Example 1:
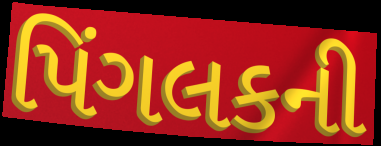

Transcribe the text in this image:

પિંગલકની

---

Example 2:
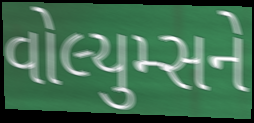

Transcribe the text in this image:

વોલ્યુમ્સને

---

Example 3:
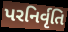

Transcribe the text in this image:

પરનિર્વૃતિ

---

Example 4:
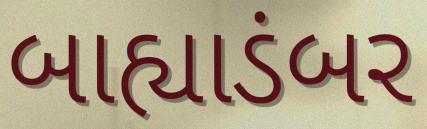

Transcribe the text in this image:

બાહ્યાડંબર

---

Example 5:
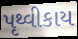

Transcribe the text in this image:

પૃથ્વીકાય